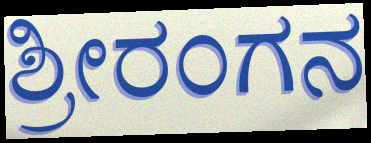
ಶ್ರೀರಂಗನ